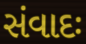
સંવાદઃ